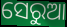
ସେରୁଆ